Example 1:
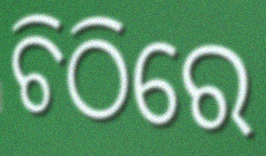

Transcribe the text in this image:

ଚିଠିରେ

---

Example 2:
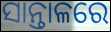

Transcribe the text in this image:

ସାନ୍ତାଳରେ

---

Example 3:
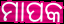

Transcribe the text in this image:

ମାପକ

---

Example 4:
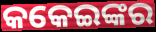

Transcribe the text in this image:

କକେଇଙ୍କର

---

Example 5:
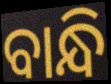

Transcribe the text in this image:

ବାନ୍ଧି